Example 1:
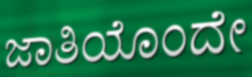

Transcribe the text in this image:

ಜಾತಿಯೊಂದೇ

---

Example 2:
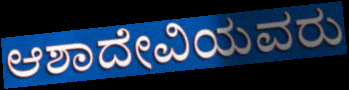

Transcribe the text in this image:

ಆಶಾದೇವಿಯವರು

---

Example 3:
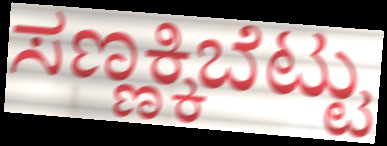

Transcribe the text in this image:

ಸಣ್ಣಕ್ಕಿಬೆಟ್ಟು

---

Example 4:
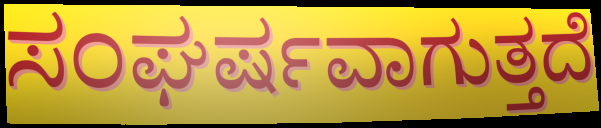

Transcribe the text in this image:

ಸಂಘರ್ಷವಾಗುತ್ತದೆ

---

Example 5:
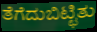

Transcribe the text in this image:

ತೆಗೆದುಬಿಟ್ಟಿತು